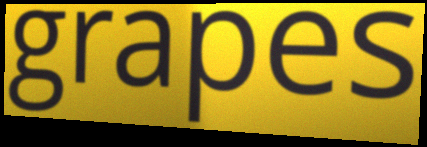
grapes